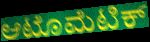
ಆಟೊಮೆಟಿಕ್